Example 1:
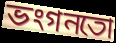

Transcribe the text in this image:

ভংগনতো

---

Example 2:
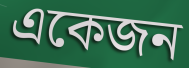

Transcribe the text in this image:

একেজন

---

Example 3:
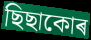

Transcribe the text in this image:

ছিছাকোৰ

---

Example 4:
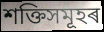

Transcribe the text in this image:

শক্তিসমূহৰ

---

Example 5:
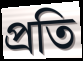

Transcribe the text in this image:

প্ৰতি